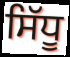
ਸਿੱਧੂ